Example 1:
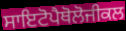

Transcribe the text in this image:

ਸਾਇਟੋਪੈਥੋਲੋਜੀਕਲ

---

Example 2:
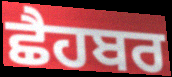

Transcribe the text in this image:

ਛੈਹਬਰ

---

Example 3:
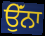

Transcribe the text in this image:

ਉਂੱਨਾ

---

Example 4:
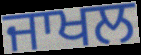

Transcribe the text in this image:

ਜਾਖਲ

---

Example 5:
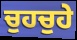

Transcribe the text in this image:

ਚੁਹਚੁਹੇ